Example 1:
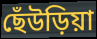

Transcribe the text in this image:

ছেঁউড়িয়া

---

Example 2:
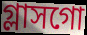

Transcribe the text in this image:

গ্লাসগো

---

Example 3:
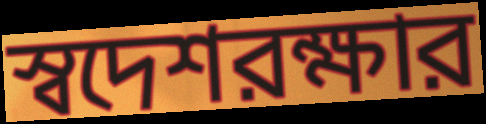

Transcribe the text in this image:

স্বদেশরক্ষার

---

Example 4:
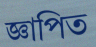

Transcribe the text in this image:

জ্ঞাপিত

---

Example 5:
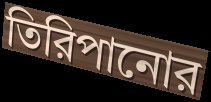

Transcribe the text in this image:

তিরিপানোর